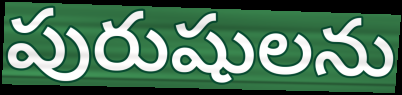
పురుషులను